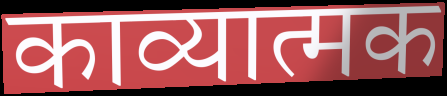
काव्यात्मक